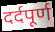
दर्दपूर्ण